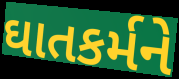
ઘાતકર્મને